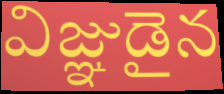
విజ్ఞుడైన